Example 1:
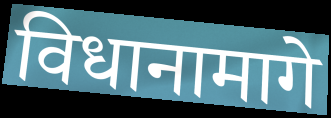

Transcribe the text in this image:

विधानामागे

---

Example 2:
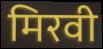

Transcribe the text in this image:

मिरवी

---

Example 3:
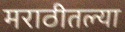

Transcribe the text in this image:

मराठीतल्या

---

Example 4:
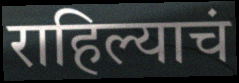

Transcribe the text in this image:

राहिल्याचं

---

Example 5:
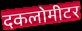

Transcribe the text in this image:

दकलोमीटर